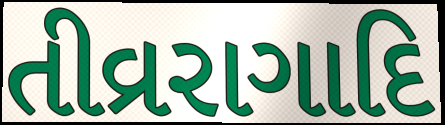
તીવ્રરાગાદિ